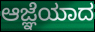
ಆಜ್ಞೆಯಾದ